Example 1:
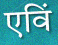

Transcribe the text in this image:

एविं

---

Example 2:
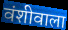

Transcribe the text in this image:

वंशीवाला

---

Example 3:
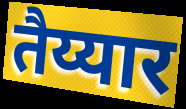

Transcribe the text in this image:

तैय्यार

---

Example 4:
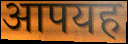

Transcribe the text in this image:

आपयह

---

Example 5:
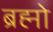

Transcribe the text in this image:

ब्रह्मो